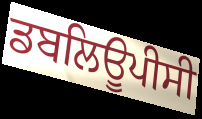
ਡਬਲਿਊਪੀਸੀ